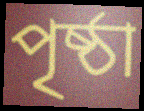
পৃষ্ঠা